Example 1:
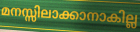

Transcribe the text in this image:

മനസ്സിലാക്കാനാകില്ല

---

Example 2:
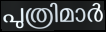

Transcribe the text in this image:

പുത്രിമാർ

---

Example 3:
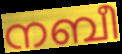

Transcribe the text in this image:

നബീ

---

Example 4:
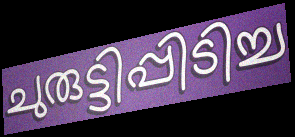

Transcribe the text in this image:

ചുരുട്ടിപ്പിടിച്ച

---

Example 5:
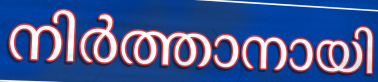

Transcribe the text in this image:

നിർത്താനായി